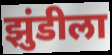
झुंडीला